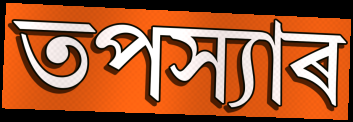
তপস্যাৰ